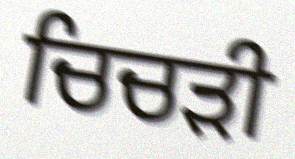
ਚਿਚੜੀ